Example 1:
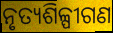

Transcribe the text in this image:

ନୃତ୍ୟଶିଳ୍ପୀଗଣ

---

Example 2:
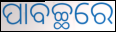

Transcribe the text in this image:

ପାବଚ୍ଛରେ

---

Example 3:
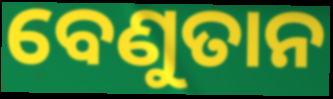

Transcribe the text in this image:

ବେଣୁତାନ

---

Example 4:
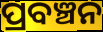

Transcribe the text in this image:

ପ୍ରବଞ୍ଚନ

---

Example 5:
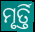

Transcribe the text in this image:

ମୃର୍ତ୍ତି